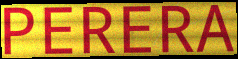
PERERA